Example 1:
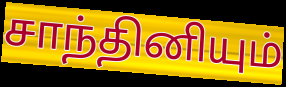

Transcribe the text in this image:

சாந்தினியும்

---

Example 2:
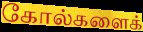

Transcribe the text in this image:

கோல்களைக்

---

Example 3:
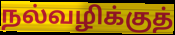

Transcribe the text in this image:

நல்வழிக்குத்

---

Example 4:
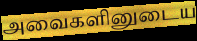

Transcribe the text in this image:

அவைகளினுடைய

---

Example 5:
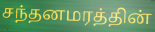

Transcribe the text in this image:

சந்தனமரத்தின்